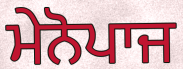
ਮੇਨੋਪਾਜ